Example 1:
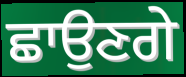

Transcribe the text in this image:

ਛਾਉਣਗੇ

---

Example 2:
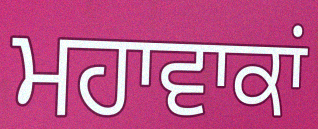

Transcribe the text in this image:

ਮਹਾਵਾਕਾਂ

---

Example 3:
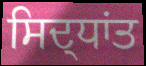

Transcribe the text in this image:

ਸਿਦ੍ਧਾਂਤ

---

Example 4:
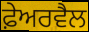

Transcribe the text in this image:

ਫ਼ੇਅਰਵੈਲ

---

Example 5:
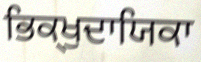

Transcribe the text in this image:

ਭਿਕ੍ਖੁਦਾਯਿਕਾ